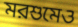
মরশুমেও